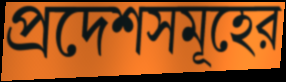
প্রদেশসমূহের